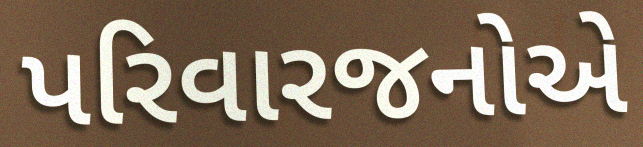
પરિવારજનોએ